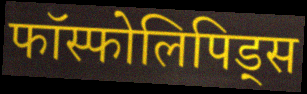
फॉस्फोलिपिड्स